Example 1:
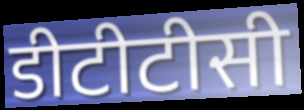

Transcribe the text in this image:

डीटीटीसी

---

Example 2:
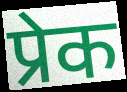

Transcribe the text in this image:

प्रेक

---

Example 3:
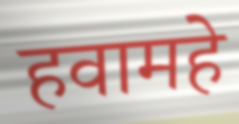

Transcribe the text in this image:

हवामहे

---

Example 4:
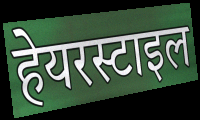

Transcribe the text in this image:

हेयरस्टाइल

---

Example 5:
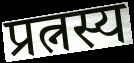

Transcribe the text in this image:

प्रत्नस्य